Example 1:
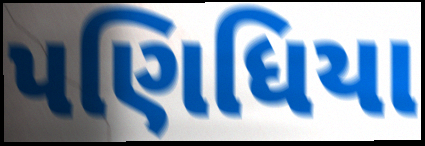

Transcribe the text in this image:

પણિધિયા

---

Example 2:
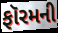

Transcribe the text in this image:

ફૉરમની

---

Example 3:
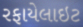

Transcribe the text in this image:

રફાયેલાઇટ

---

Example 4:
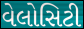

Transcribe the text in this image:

વેલોસિટી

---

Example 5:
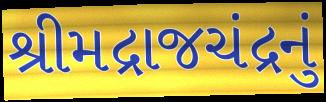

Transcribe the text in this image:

શ્રીમદ્રાજચંદ્રનું